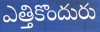
ఎత్తికొందురు